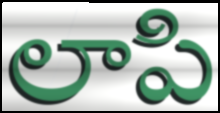
లాపి